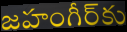
జహంగీర్‌కు